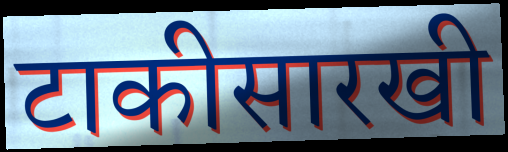
टाकीसारखी